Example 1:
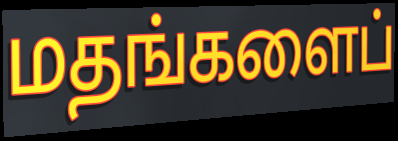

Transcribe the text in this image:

மதங்களைப்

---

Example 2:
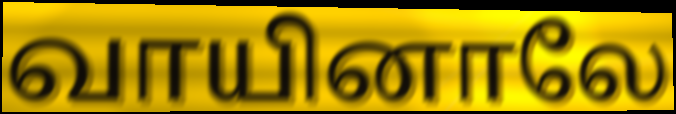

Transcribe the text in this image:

வாயினாலே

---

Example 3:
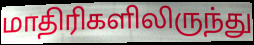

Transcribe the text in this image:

மாதிரிகளிலிருந்து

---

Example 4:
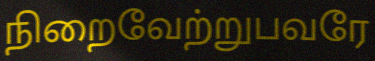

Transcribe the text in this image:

நிறைவேற்றுபவரே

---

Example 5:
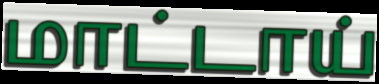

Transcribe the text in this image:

மாட்டாய்